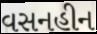
વસનહીન